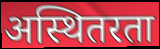
अस्थितरता